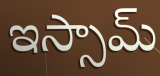
ఇస్సామ్